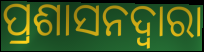
ପ୍ରଶାସନଦ୍ୱାରା